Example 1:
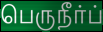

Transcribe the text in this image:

பெருநீர்ப்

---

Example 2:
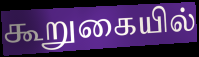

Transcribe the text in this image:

கூறுகையில்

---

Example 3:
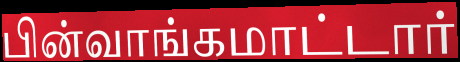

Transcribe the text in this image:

பின்வாங்கமாட்டார்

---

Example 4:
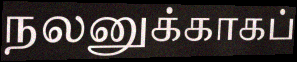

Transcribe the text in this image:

நலனுக்காகப்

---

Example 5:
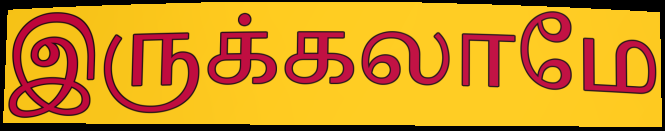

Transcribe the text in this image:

இருக்கலாமே